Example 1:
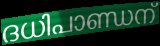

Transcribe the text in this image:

ദധിപാണ്ഡന്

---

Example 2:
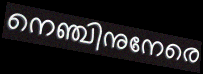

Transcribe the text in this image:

നെഞ്ചിനുനേരെ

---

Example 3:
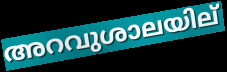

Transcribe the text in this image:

അറവുശാലയില്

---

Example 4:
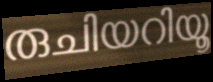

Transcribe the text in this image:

രുചിയറിയൂ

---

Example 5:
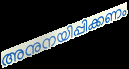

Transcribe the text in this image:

അനുനയിപ്പിക്കണം